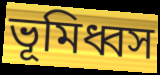
ভূমিধ্বস